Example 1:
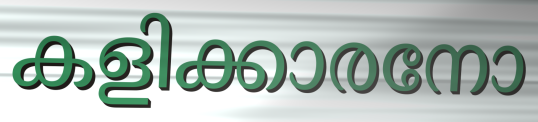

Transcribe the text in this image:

കളിക്കാരനോ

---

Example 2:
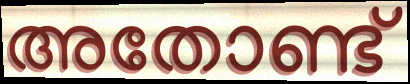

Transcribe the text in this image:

അതോണ്ട്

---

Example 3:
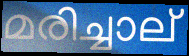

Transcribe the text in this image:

മരിച്ചാല്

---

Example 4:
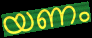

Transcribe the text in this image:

യണം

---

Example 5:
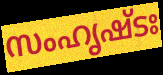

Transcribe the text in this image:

സംഹൃഷ്ടഃ